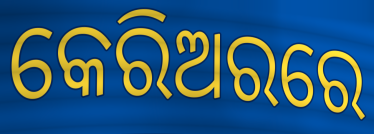
କେରିଅରରେ